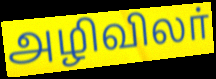
அழிவிலர்